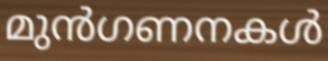
മുൻഗണനകൾ